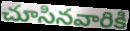
చూసినవారికి